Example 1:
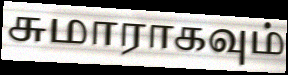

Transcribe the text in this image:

சுமாராகவும்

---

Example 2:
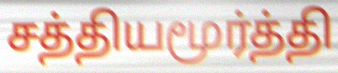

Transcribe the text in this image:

சத்தியமூர்த்தி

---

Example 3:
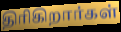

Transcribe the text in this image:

திரிகிறார்கள்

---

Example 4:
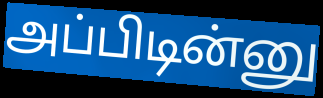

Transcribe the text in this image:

அப்பிடின்னு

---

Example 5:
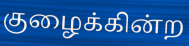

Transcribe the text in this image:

குழைக்கின்ற